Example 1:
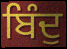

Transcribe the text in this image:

ਬਿੰਦੁ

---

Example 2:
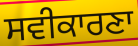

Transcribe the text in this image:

ਸਵੀਕਾਰਣਾ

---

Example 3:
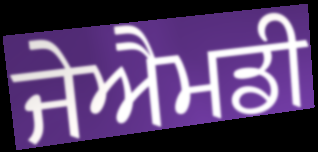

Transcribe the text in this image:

ਜੇਐਮਡੀ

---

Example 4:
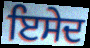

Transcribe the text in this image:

ਇਸੇਦ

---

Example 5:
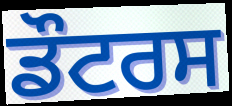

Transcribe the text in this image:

ਡੌਟਰਸ